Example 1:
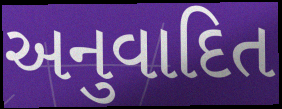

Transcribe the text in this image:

અનુવાદિત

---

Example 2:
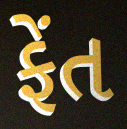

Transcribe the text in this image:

ફેંત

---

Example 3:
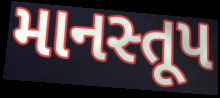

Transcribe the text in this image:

માનસ્તૂપ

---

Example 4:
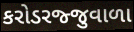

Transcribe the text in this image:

કરોડરજ્જુવાળા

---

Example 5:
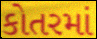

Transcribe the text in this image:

કોતરમાં